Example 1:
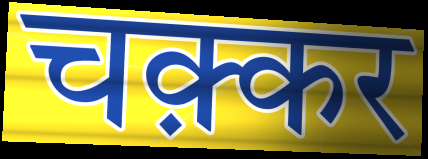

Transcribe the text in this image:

चक़्कर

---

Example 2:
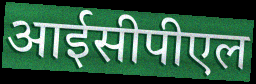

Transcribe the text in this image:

आईसीपीएल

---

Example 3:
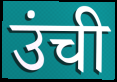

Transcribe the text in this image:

उंची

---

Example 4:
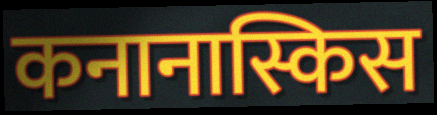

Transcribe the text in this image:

कनानास्किस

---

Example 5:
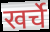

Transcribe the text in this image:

खर्चे